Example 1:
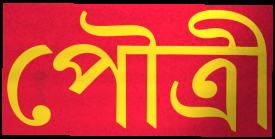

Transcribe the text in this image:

পৌত্রী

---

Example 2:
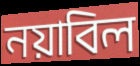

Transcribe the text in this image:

নয়াবিল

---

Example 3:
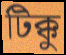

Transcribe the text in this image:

টিক্কু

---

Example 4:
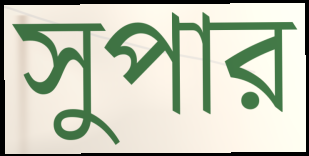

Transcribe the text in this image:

সুপার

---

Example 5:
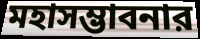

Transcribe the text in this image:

মহাসম্ভাবনার